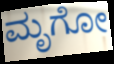
ಮೃಗೋ